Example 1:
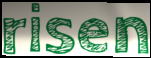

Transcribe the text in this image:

risen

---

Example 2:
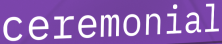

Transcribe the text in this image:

ceremonial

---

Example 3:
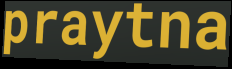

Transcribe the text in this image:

praytna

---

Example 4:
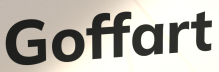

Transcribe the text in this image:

Goffart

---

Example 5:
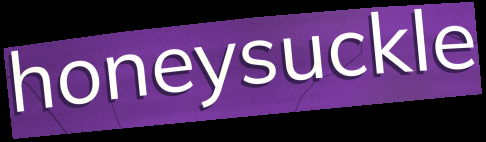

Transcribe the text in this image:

honeysuckle